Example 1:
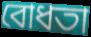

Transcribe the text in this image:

বোধতা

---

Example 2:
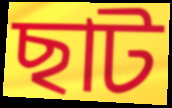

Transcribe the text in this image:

ছাট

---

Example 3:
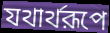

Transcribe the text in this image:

যথার্থরূপে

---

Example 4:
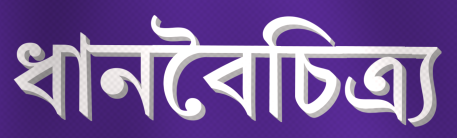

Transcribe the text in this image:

ধানবৈচিত্র্য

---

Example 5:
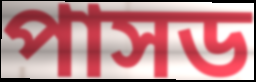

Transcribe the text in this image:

পাসড